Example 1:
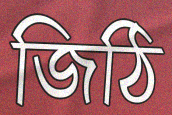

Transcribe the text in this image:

জিঠি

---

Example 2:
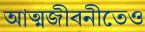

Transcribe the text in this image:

আত্মজীবনীতেও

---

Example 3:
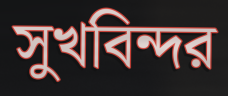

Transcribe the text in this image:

সুখবিন্দর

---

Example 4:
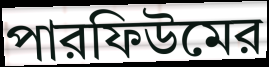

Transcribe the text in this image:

পারফিউমের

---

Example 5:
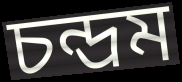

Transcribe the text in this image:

চন্দ্রম